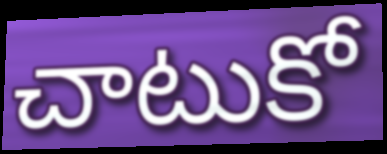
చాటుకో